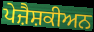
ਪੇਜ਼ੈਸ਼ਕੀਅਨ